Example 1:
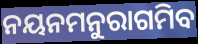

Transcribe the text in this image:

ନୟନମନୁରାଗମିବ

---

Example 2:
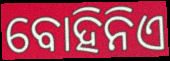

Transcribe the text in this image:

ବୋହିନିଏ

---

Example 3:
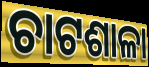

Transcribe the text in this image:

ଚାଟଶାଳା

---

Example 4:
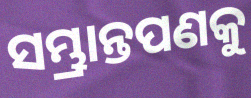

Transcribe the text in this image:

ସମ୍ଭ୍ରାନ୍ତପଣକୁ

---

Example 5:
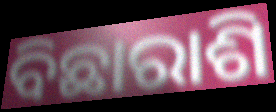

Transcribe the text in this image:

ବିଛାରାଶି